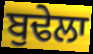
ਬੁਢੇਲਾ